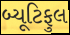
બ્યૂટિફુલ